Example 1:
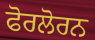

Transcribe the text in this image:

ਫੋਰਲੋਰਨ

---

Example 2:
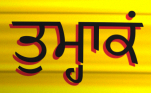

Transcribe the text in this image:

ਤੁਮ੍ਹਾਕਂ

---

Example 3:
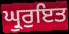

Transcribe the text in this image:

ਘ੍ਰੁਰੁਇਤ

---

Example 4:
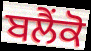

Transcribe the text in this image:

ਬਲੈਂਕੋ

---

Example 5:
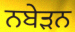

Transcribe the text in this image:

ਨਬੇੜਨ